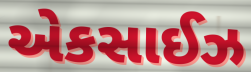
એકસાઈઝ